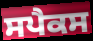
ਸਪੈਕਸ